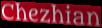
Chezhian